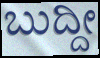
ಬುದ್ದೀ